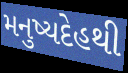
મનુષ્યદેહથી